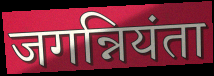
जगन्नियंता